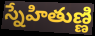
స్నేహితుణ్ణి